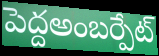
పెద్దఅంబర్పేట్